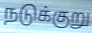
நடுக்குறு